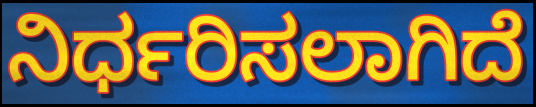
ನಿರ್ಧರಿಸಲಾಗಿದೆ